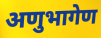
अणुभागेण